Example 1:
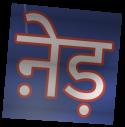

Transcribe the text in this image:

ऩेड़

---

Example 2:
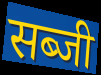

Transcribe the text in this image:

सब्जी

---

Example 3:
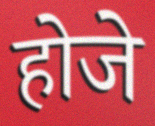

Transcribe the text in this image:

होजे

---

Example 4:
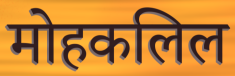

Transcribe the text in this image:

मोहकलिल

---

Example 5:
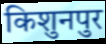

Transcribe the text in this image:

किशुनपुर